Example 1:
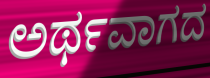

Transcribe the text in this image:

ಅರ್ಥವಾಗದ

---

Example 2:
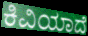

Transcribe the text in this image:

ಕಿವಿಯಾದೆ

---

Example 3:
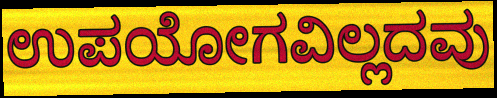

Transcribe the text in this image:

ಉಪಯೋಗವಿಲ್ಲದವು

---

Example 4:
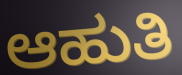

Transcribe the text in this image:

ಆಹುತಿ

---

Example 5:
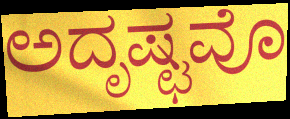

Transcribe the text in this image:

ಅದೃಷ್ಟವೊ